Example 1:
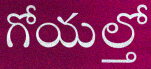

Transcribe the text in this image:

గోయల్తో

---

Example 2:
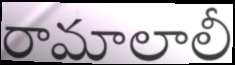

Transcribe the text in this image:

రామాలాలీ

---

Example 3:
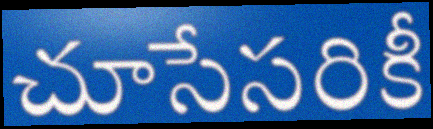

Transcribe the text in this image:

చూసేసరికీ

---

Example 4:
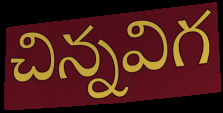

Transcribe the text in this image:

చిన్నవిగ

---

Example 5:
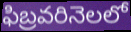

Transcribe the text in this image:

ఫిబ్రవరినెలలో